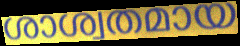
ശാശ്വതമായ